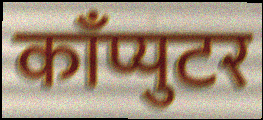
काँप्युटर